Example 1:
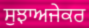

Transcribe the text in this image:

ਸੁਝਾਅਜੇਕਰ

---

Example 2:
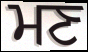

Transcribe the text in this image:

ਮਣ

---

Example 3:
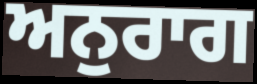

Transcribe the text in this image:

ਅਨੁਰਾਗ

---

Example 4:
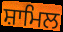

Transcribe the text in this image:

ਸ਼ਾਮਿਲ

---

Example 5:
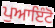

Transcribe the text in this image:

ਪੁਆਇੰਟੋ